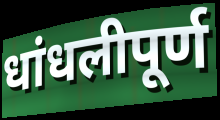
धांधलीपूर्ण